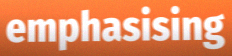
emphasising